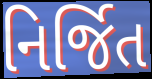
નિર્જિત